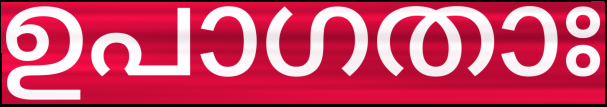
ഉപാഗതാഃ